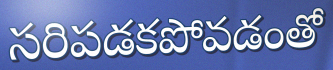
సరిపడకపోవడంతో